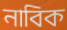
নাবিক